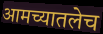
आमच्यातलेच